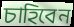
চাহিবেন